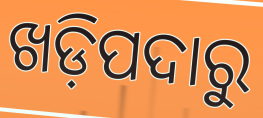
ଖଡ଼ିପଦାରୁ